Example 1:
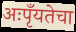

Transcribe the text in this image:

अःपृँयतेचा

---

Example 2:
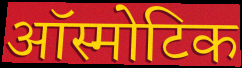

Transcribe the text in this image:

ऑस्मोटिक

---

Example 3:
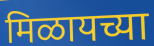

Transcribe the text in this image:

मिळायच्या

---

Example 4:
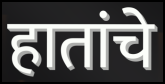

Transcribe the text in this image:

हातांचे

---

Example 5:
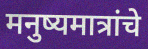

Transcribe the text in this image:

मनुष्यमात्रांचे